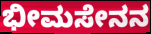
ಭೀಮಸೇನನ